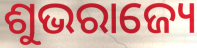
ଶୁଭରାଜ୍ୟେ